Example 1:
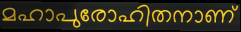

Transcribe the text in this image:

മഹാപുരോഹിതനാണ്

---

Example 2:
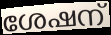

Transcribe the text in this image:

ശേഷന്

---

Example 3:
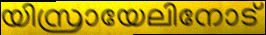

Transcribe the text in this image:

യിസ്രായേലിനോട്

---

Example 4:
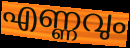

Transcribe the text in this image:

എണ്ണവും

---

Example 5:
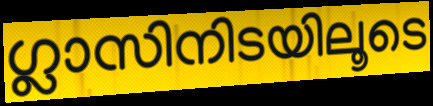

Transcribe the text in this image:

ഗ്ലാസിനിടയിലൂടെ